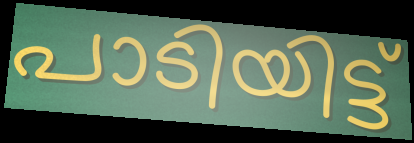
പാടിയിട്ട്